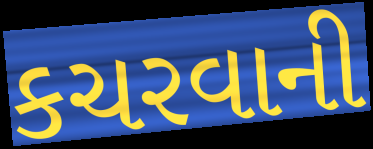
કચરવાની